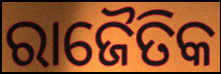
ରାଜୈତିକ